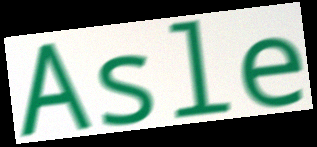
Asle